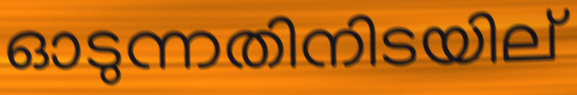
ഓടുന്നതിനിടയില്